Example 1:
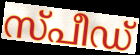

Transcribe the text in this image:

സ്പീഡ്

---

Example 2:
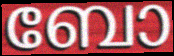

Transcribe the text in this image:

ബോ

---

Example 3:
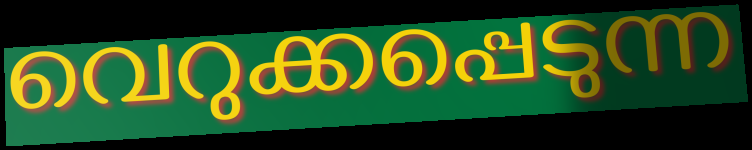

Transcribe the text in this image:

വെറുക്കപ്പെടുന്ന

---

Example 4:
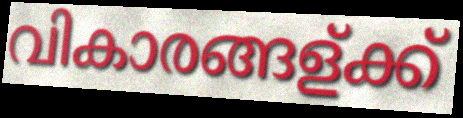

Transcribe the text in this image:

വികാരങ്ങള്ക്ക്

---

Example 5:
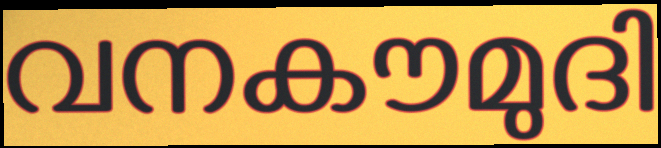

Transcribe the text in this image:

വനകൗമുദി